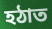
হঠাত